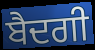
ਬੈਦਗੀ